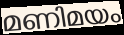
മണിമയം